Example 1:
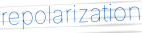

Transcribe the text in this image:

repolarization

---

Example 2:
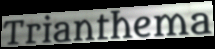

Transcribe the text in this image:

Trianthema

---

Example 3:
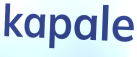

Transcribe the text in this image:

kapale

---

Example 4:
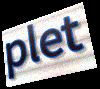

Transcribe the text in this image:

plet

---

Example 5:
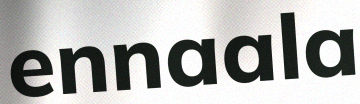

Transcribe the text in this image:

ennaala